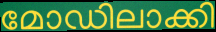
മോഡിലാക്കി